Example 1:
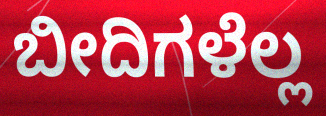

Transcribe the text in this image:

ಬೀದಿಗಳೆಲ್ಲ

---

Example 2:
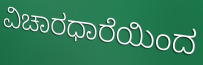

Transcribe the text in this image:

ವಿಚಾರಧಾರೆಯಿಂದ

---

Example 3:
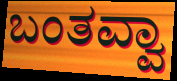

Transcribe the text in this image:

ಬಂತವ್ವಾ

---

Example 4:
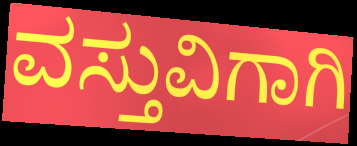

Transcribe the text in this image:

ವಸ್ತುವಿಗಾಗಿ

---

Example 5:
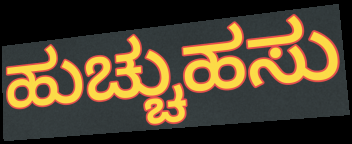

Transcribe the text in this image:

ಹುಚ್ಚುಹಸು